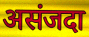
असंजदा